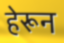
हेरून